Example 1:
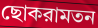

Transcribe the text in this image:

ছোকরামতন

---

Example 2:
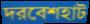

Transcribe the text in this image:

দরবেশহাট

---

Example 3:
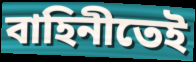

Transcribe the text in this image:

বাহিনীতেই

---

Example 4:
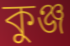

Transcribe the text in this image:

কুঞ্জ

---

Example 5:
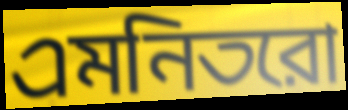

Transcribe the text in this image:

এমনিতরো